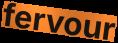
fervour